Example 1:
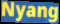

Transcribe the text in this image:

Nyang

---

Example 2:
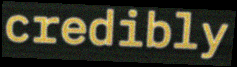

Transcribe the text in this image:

credibly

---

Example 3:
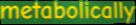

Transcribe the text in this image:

metabolically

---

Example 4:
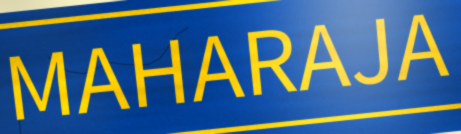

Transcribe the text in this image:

MAHARAJA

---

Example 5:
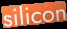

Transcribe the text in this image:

silicon